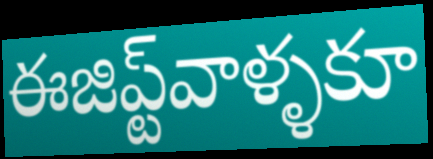
ఈజిప్ట్‌వాళ్ళకూ